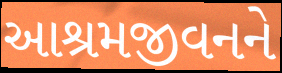
આશ્રમજીવનને